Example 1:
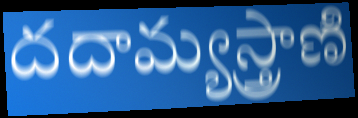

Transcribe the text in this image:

దదామ్యస్త్రాణి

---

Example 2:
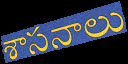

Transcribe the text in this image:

శాసనాలు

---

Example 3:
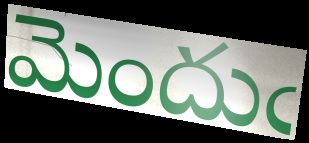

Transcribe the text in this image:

మెందుఁ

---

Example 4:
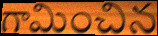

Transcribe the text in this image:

గామించిన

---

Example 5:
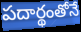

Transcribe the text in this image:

పదార్థంతోనే